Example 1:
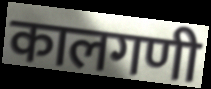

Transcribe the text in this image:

कालगणी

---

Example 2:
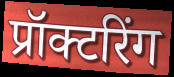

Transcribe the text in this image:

प्रॉक्टरिंग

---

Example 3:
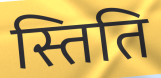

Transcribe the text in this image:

स्तिति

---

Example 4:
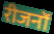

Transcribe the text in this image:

रीजनों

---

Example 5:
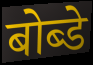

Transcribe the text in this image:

बोब्डे